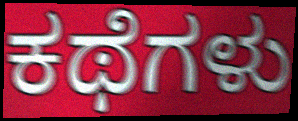
ಕಥೆಗಳು